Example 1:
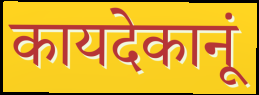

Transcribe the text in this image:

कायदेकानूं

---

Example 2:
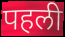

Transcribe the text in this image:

पहली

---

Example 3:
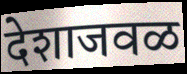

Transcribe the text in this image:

देशाजवळ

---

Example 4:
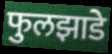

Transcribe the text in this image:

फुलझाडे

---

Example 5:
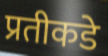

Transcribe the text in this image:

प्रतीकडे